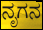
ನೃಗನ